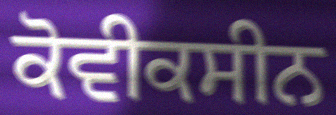
ਕੋਵੀਕਸੀਨ